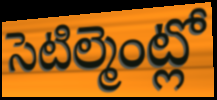
సెటిల్మెంట్లో